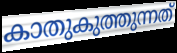
കാതുകുത്തുന്നത്